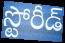
స్టోరీడ్